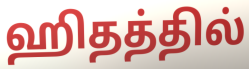
ஹிதத்தில்